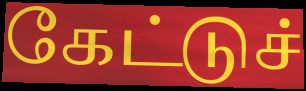
கேட்டுச்